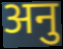
अनु